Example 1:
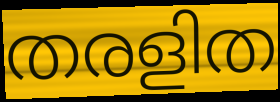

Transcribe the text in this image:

തരളിത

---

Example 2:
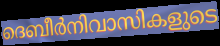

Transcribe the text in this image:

ദെബീർനിവാസികളുടെ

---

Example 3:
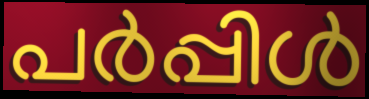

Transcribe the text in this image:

പർപ്പിൾ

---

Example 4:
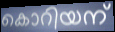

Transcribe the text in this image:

കൊറിയന്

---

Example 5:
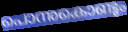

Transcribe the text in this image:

പൊന്നുകൊണ്ടും